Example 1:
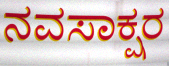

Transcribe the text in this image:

ನವಸಾಕ್ಷರ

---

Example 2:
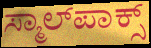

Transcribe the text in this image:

ಸ್ಮಾಲ್‌ಪಾಕ್ಸ್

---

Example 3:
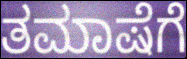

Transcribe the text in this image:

ತಮಾಷೆಗೆ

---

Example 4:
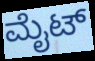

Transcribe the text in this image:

ಮೈಟ್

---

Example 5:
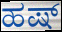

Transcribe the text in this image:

ಹಷ್